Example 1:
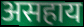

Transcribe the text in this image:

असहाय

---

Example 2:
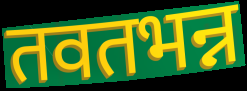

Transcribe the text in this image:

तवतभन्न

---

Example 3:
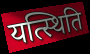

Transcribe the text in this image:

यत्स्थिति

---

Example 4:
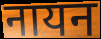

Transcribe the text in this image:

नायन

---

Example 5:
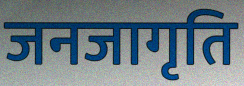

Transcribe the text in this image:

जनजागृति